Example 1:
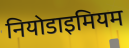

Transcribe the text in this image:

नियोडाइमियम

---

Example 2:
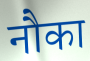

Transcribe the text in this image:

नौका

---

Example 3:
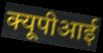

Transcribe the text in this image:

क्यूपीआई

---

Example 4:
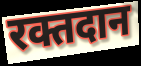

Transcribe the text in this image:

रक्तदान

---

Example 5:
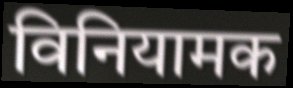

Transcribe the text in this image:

विनियामक